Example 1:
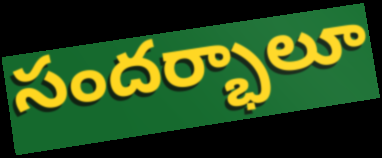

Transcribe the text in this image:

సందర్భాలూ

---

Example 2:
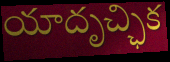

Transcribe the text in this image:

యాదృచ్ఛిక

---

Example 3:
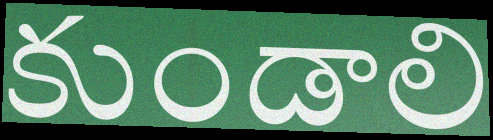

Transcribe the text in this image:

కుండాలి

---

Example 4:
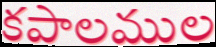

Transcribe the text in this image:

కపాలముల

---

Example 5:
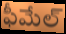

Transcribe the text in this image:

ఫీమేల్